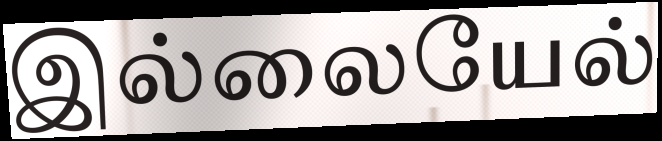
இல்லையேல்